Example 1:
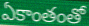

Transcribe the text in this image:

ఏకాంతంతో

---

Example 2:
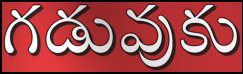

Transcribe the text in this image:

గడువుకు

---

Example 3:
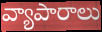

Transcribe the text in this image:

వ్యాపారాలు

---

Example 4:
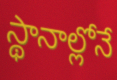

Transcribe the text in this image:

స్థానాల్లోనే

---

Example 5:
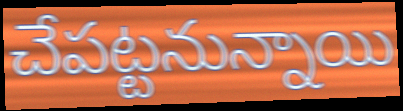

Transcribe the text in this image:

చేపట్టనున్నాయి